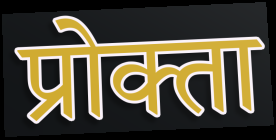
प्रोक्ता